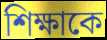
শিক্ষাকে